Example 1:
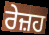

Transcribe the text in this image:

ਰੇਜ਼ਹ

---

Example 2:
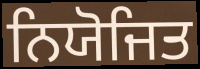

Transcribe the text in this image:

ਨਿਯੋਜਿਤ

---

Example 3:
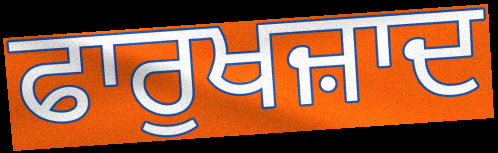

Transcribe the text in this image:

ਫਾਰੁਖਜ਼ਾਦ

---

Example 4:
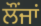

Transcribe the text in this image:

ਲੌਂਜਾਂ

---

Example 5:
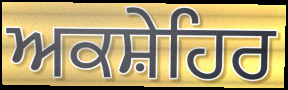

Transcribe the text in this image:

ਅਕਸ਼ੇਹਿਰ